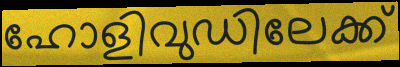
ഹോളിവുഡിലേക്ക്